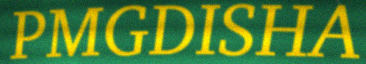
PMGDISHA